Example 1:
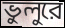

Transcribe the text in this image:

ভুলুরে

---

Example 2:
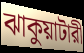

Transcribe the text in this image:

ঝাকুয়াটারী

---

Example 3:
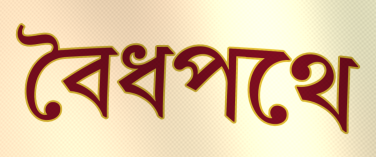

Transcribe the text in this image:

বৈধপথে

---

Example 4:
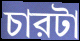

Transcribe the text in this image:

চারটা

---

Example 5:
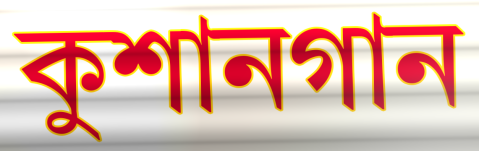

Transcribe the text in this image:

কুশানগান